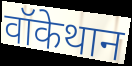
वॉकेथान